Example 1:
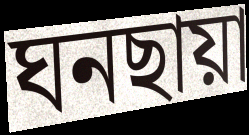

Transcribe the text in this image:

ঘনছায়া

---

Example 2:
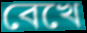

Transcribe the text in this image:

বেখে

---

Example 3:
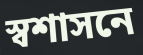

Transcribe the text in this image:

স্বশাসনে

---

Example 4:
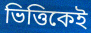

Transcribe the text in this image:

ভিত্তিকেই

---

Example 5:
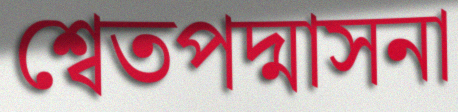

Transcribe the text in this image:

শ্বেতপদ্মাসনা